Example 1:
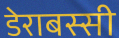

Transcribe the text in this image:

डेराबस्सी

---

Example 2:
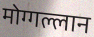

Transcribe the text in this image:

मोग्गल्लान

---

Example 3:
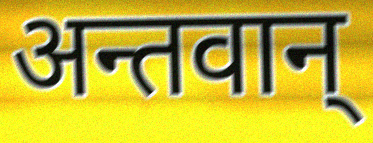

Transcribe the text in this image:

अन्तवान्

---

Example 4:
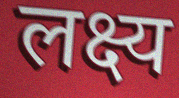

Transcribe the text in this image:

लक्ष्‍य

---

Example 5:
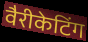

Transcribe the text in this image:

वैरीकेटिंग